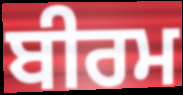
ਬੀਰਮ